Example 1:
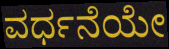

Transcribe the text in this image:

ವರ್ಧನೆಯೇ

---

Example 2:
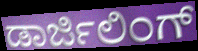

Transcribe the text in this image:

ಡಾರ್ಜಿಲಿಂಗ್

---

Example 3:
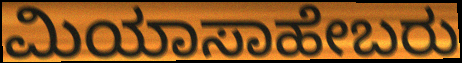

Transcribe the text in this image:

ಮಿಯಾಸಾಹೇಬರು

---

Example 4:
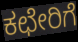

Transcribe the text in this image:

ಕಛೇರಿಗೆ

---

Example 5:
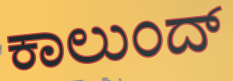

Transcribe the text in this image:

ಕಾಲುಂದ್